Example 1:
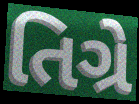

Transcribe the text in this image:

તિગ્રે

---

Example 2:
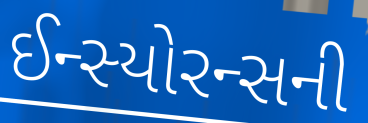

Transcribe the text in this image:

ઈન્સ્યોરન્સની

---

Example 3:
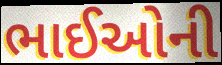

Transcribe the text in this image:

ભાઈઓની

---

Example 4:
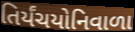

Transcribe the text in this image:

તિર્યંચયોનિવાળા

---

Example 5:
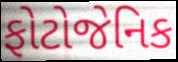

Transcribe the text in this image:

ફોટોજેનિક